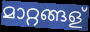
മാറ്റങ്ങള്